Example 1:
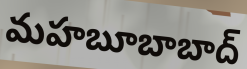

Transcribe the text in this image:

మహబూబాబాద్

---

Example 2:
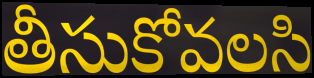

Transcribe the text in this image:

తీసుకోవలసి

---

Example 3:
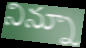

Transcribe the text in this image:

నిన్నూ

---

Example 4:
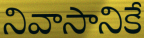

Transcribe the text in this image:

నివాసానికే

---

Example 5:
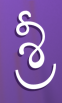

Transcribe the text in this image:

శ్రీ